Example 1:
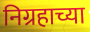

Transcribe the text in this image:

निग्रहाच्या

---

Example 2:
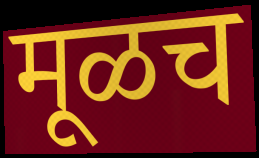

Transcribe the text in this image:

मूळच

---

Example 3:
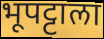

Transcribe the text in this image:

भूपट्टाला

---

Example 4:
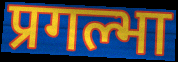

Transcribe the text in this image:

प्रगल्भा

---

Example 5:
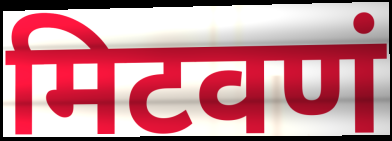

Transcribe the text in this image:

मिटवणं